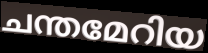
ചന്തമേറിയ